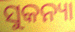
ସୁକନ୍ୟା